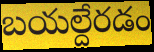
బయల్దేరడం